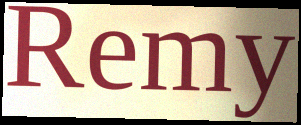
Remy